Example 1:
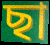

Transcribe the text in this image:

ছা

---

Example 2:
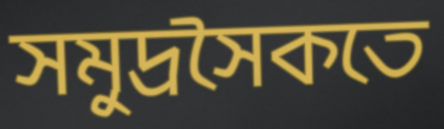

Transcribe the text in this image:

সমুদ্রসৈকতে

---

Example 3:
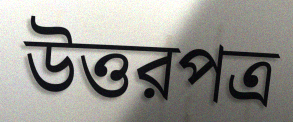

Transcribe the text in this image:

উত্তরপত্র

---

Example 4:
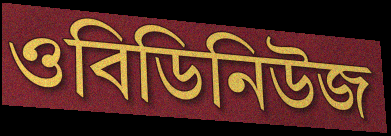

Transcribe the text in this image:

ওবিডিনিউজ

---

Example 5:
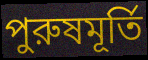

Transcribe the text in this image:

পুরুষমূর্তি